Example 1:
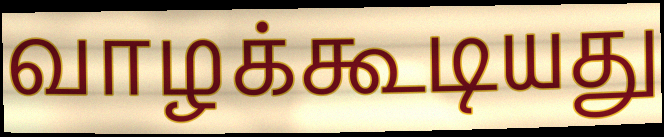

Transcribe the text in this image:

வாழக்கூடியது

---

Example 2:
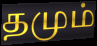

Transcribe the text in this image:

தமும்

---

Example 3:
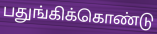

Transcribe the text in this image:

பதுங்கிக்கொண்டு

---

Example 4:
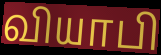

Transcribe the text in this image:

வியாபி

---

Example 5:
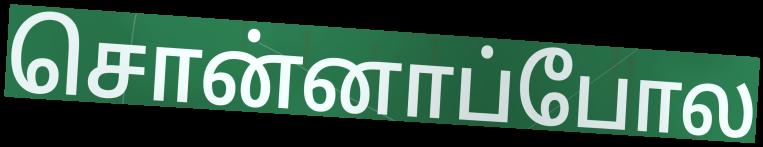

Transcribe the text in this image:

சொன்னாப்போல